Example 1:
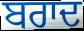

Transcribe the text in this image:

ਬਰਾਦ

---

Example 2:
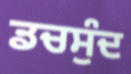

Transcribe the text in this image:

ਡਚਸੁੰਦ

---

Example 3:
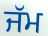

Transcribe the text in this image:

ਜੱਮ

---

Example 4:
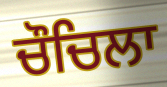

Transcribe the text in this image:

ਚੌਚਿਲਾ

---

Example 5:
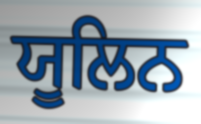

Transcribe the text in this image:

ਯੂਲਿਨ